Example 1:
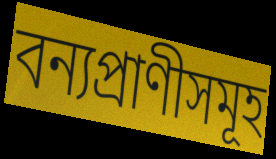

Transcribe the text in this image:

বন্যপ্ৰাণীসমূহ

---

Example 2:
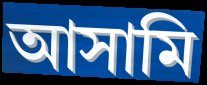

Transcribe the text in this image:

আসামি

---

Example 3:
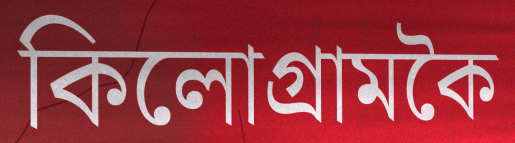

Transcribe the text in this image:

কিলোগ্ৰামকৈ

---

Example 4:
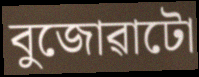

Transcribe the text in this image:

বুজোৱাটো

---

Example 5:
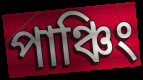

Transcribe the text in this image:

পাঞ্চিং